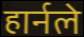
हार्नले